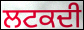
ਲਟਕਦੀ